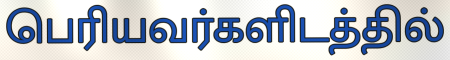
பெரியவர்களிடத்தில்